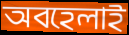
অবহেলাই